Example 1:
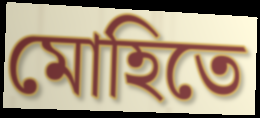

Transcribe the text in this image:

মোহিতে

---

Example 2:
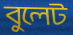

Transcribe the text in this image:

বুলেট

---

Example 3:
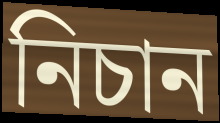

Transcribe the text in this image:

নিচান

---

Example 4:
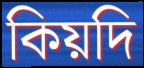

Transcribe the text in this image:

কিয়দি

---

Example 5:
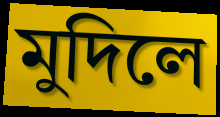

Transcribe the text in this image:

মুদিলে